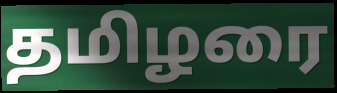
தமிழரை